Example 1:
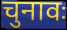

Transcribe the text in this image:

चुनावः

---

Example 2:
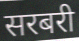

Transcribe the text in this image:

सरबरी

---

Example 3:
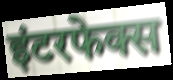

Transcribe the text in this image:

इंटरफेक्स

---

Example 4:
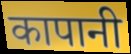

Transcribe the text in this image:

कापानी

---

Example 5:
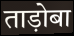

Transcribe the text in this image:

ताड़ोबा